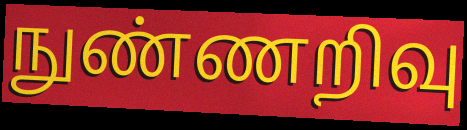
நுண்ணறிவு